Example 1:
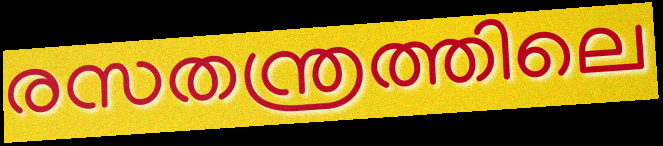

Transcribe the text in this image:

രസതന്ത്രത്തിലെ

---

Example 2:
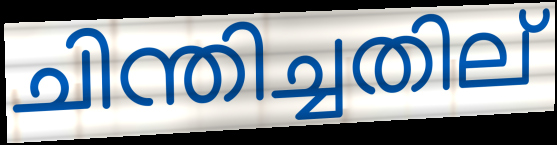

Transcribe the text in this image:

ചിന്തിച്ചതില്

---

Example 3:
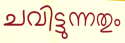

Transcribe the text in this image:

ചവിട്ടുന്നതും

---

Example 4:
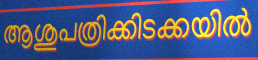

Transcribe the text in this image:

ആശുപത്രിക്കിടക്കയിൽ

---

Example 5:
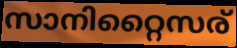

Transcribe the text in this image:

സാനിറ്റൈസര്